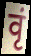
वृं